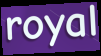
royal